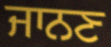
ਜਾਨਣ